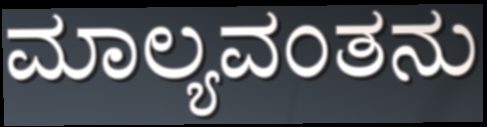
ಮಾಲ್ಯವಂತನು